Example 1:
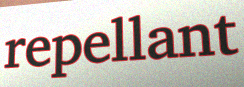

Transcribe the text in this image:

repellant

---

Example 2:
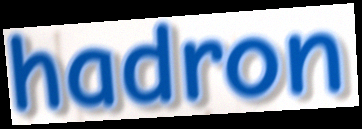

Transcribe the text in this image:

hadron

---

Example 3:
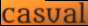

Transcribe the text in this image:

casual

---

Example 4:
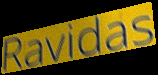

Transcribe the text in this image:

Ravidas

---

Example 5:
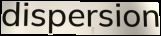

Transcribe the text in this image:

dispersion